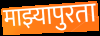
माझ्यापुरता